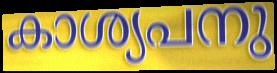
കാശ്യപനു